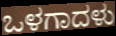
ಒಳಗಾದಳು